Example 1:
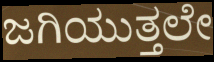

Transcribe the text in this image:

ಜಗಿಯುತ್ತಲೇ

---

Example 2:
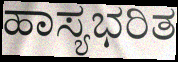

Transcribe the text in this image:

ಹಾಸ್ಯಭರಿತ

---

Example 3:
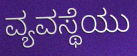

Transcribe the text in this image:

ವ್ಯವಸ್ಥೆಯು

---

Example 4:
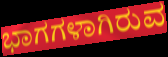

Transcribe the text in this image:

ಭಾಗಗಳಾಗಿರುವ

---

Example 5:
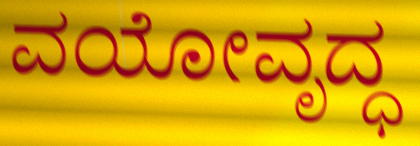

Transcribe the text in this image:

ವಯೋವೃದ್ಧ